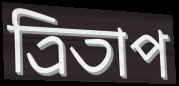
ত্রিতাপ